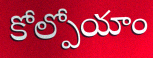
కోల్పోయాం